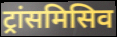
ट्रांसमिसिव